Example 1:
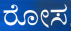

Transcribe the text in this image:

ರೋಸ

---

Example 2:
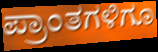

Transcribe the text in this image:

ಪ್ರಾಂತಗಳಿಗೂ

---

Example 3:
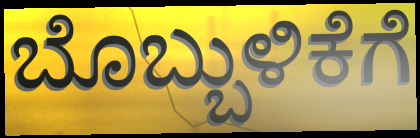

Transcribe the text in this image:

ಬೊಬ್ಬುಳಿಕೆಗೆ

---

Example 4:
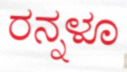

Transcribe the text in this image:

ರನ್ನಳೂ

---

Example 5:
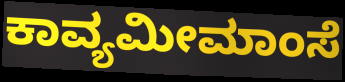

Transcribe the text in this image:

ಕಾವ್ಯಮೀಮಾಂಸೆ